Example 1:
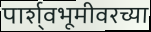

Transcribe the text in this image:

पार्श्वभूमीवरच्या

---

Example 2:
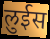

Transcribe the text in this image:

लुईस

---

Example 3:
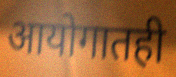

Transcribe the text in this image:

आयोगातही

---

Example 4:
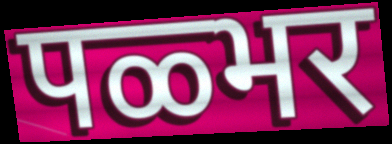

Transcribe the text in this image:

पळ्भर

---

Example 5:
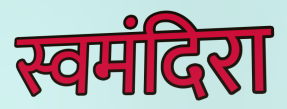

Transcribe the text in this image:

स्वमंदिरा